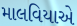
માલવિયાએ